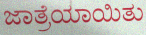
ಜಾತ್ರೆಯಾಯಿತು